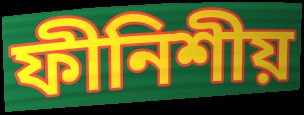
ফীনিশীয়